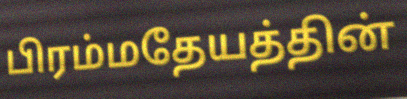
பிரம்மதேயத்தின்